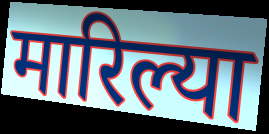
मारिल्या